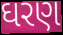
ઘરણ